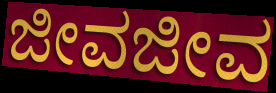
ಜೀವಜೀವ